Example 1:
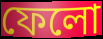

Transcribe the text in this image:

ফেলো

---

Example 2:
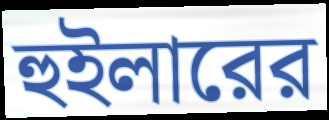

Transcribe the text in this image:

হুইলারের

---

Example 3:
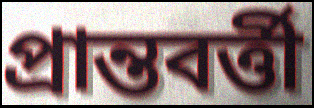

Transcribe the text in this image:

প্রান্তবর্ত্তী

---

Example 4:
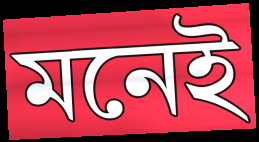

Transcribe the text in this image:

মনেই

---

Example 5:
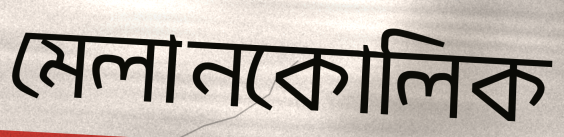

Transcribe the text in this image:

মেলানকোলিক